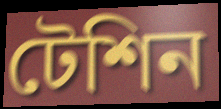
টেশিন